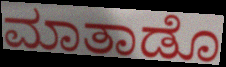
ಮಾತಾಡೊ